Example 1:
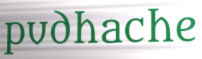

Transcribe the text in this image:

pudhache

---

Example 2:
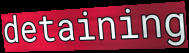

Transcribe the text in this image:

detaining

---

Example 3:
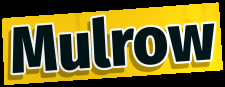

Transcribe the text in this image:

Mulrow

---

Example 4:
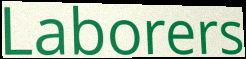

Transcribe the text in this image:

Laborers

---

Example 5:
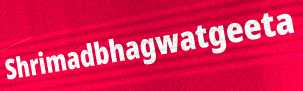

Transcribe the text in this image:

Shrimadbhagwatgeeta